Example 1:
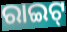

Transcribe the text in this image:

ରାଇଟ୍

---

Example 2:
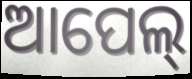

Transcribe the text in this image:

ଆପେଲ୍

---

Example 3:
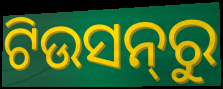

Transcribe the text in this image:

ଟିଉସନ୍‌ରୁ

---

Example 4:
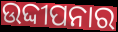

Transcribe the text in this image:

ଉଦ୍ଦୀପନାର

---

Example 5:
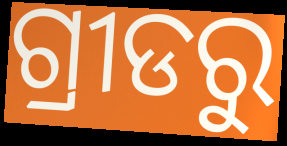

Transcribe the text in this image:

ଗ୍ରୀଡରୁ